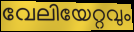
വേലിയേറ്റവും